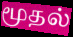
மூதல்